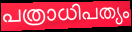
പത്രാധിപത്യം